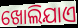
ଖୋଲିଯାଏ